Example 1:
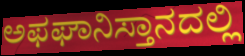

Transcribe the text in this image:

ಅಫಘಾನಿಸ್ತಾನದಲ್ಲಿ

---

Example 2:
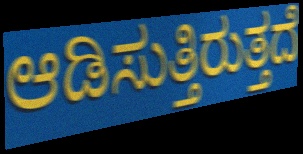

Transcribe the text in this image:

ಆಡಿಸುತ್ತಿರುತ್ತದೆ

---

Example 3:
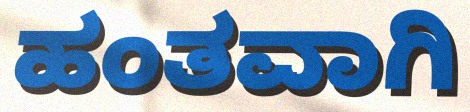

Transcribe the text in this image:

ಹಂತವಾಗಿ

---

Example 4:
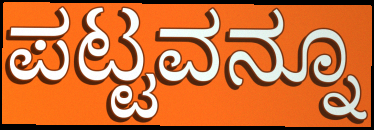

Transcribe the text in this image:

ಪಟ್ಟವನ್ನೂ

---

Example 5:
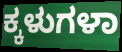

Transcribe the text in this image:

ಕ್ಕಳುಗಳಾ